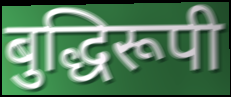
बुद्धिरूपी